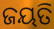
ଜୟତି